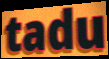
tadu